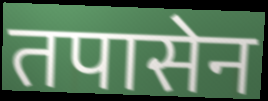
तपासेन